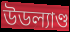
উডল্যাণ্ড